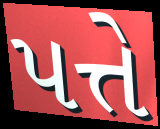
પત્તે